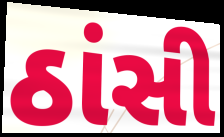
ઠાંસી